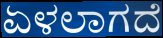
ಏಳಲಾಗದೆ